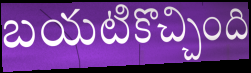
బయటికొచ్చింది